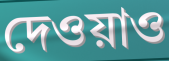
দেওয়াও